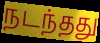
நடந்தது